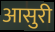
आसुरी